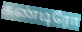
கண்டிரோ